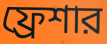
ফ্রেশার